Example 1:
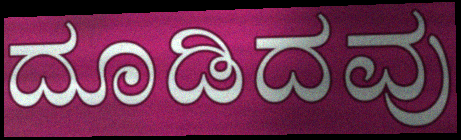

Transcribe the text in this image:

ದೂಡಿದವು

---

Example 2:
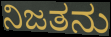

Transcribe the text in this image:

ನಿಜತನು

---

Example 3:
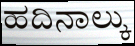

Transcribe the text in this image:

ಹದಿನಾಲ್ಕು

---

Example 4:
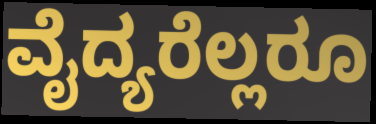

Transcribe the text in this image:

ವೈದ್ಯರೆಲ್ಲರೂ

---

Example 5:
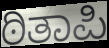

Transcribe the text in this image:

ಠಿತಾಪಿ